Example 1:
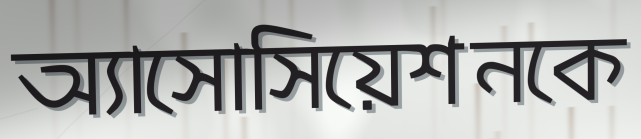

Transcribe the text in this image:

অ্যাসোসিয়েশনকে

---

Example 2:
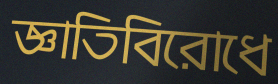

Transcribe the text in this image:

জ্ঞাতিবিরোধে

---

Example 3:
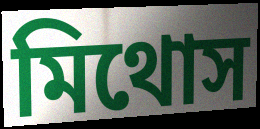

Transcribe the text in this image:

মিথোস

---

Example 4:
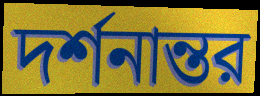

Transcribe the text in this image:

দর্শনান্তর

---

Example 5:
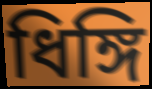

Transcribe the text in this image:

ধিঙ্গি